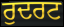
ਰੁਦਰਟ